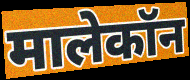
मालेकॉन